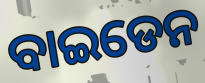
ବାଇଡେନ